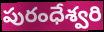
పురంధేశ్వరి